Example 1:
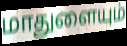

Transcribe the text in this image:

மாதுளையும்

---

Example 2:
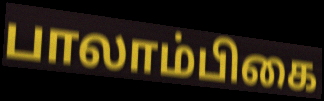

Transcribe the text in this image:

பாலாம்பிகை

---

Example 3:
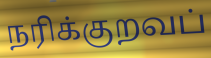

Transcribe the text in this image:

நரிக்குறவப்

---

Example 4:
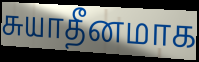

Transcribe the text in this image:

சுயாதீனமாக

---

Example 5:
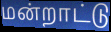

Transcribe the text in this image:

மன்றாட்டு